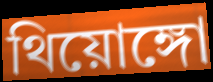
থিয়োঙ্গো